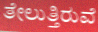
ತೇಲುತ್ತಿರುವೆ